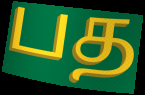
பத